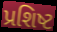
પ્રશિષ્ટ